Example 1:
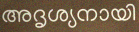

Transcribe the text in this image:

അദൃശ്യനായി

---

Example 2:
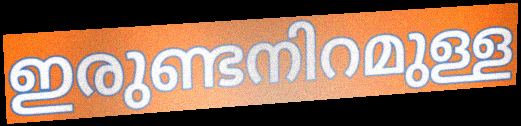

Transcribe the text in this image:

ഇരുണ്ടനിറമുള്ള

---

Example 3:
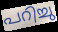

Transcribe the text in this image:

പറിച്ചു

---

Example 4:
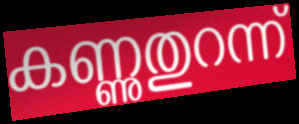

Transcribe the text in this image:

കണ്ണുതുറന്ന്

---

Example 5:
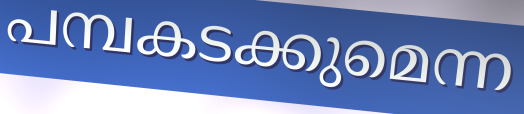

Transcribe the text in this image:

പമ്പകടക്കുമെന്ന